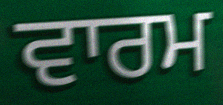
ਵਾਰਮ